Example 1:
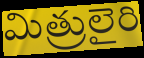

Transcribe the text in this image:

మిత్రులైరి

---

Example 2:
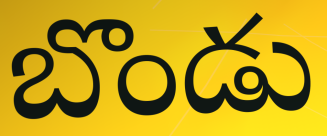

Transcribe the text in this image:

బొండు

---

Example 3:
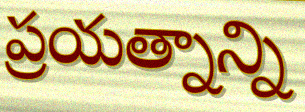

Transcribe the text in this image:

ప్రయత్నాన్ని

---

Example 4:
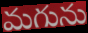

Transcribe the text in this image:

మగును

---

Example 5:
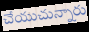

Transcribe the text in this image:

చేయుచున్నారు